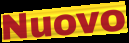
Nuovo